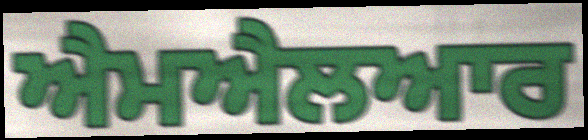
ਐਮਐਲਆਰ